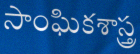
సాంఘికశాస్త్ర